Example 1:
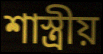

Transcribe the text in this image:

শাস্ত্ৰীয়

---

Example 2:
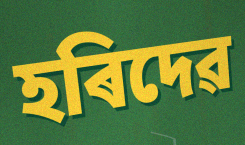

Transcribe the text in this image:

হৰিদেৱ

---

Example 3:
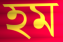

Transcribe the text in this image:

হম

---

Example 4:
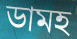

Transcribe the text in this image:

ডামহ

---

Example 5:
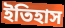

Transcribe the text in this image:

ইতিহাস